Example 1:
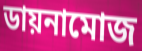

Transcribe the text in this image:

ডায়নামোজ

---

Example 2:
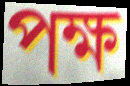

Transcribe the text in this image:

পক্ষ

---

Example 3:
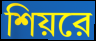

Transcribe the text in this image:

শিয়রে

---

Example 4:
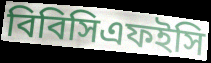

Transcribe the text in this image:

বিবিসিএফইসি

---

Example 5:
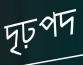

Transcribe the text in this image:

দৃঢ়পদ